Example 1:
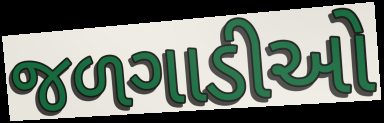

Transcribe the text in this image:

જળગાડીઓ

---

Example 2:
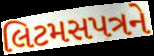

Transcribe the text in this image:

લિટમસપત્રને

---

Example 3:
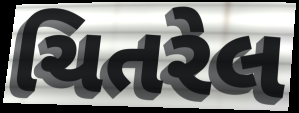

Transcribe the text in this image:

ચિતરેલ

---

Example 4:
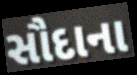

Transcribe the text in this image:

સૌદાના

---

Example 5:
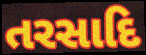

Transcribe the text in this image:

તરસાદિ